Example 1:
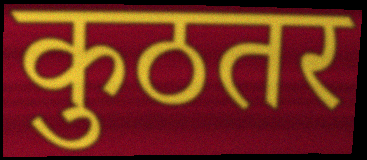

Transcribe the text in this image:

कुठतर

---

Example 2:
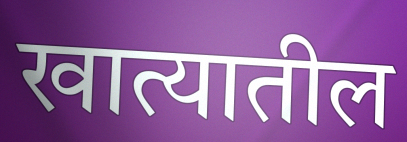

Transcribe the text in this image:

खात्यातील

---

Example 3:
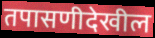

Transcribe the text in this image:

तपासणीदेखील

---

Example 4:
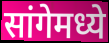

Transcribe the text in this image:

सांगेमध्ये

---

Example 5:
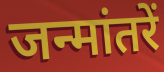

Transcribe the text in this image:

जन्मांतरें